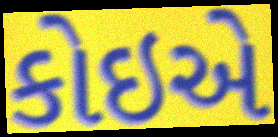
કોઇએ